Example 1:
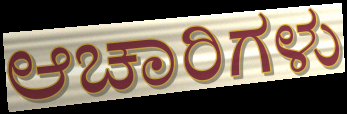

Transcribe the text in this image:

ಆಚಾರಿಗಳು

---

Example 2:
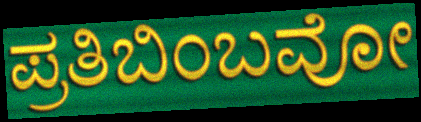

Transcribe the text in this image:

ಪ್ರತಿಬಿಂಬವೋ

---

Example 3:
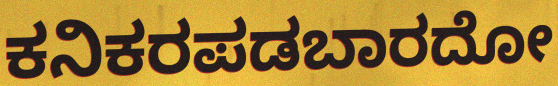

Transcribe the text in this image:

ಕನಿಕರಪಡಬಾರದೋ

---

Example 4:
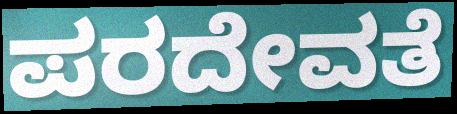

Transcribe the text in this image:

ಪರದೇವತೆ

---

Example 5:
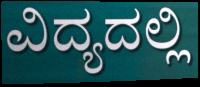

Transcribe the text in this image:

ವಿದ್ಯದಲ್ಲಿ